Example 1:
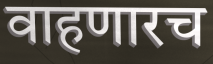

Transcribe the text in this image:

वाहणारच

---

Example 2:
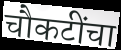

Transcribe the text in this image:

चौकटींचा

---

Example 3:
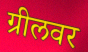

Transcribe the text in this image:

ग्रीलवर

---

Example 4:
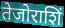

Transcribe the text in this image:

तेजोराशिं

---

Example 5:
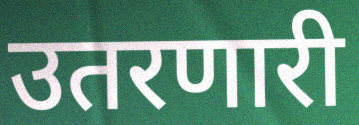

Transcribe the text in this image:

उतरणारी